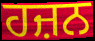
ਹਜ਼ਨ